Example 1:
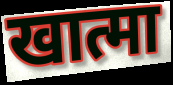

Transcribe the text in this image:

खात्मा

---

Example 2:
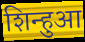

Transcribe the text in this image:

शिन्हुआ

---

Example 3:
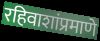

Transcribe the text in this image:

रहिवाशांप्रमाणे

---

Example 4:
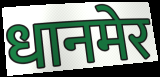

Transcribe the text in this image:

धानमेर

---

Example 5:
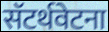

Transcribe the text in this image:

सॅटर्थवेटना